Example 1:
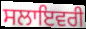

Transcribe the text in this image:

ਸਲਾਇਵਰੀ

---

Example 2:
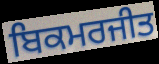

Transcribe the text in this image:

ਬਿਕਮਰਜੀਤ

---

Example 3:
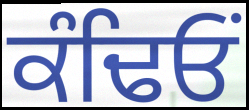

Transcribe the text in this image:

ਕੰਢਿਓਂ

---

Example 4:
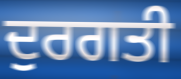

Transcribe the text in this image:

ਦੁਰਗਤੀ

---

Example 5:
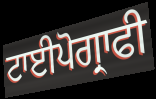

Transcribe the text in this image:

ਟਾਈਪੋਗ੍ਰਾਫੀ